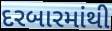
દરબારમાંથી